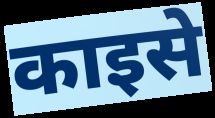
काइसे